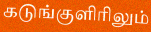
கடுங்குளிரிலும்